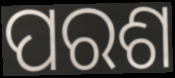
ପରଶ